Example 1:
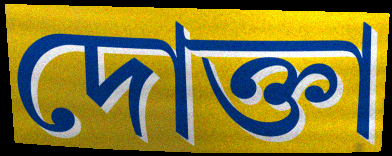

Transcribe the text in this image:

দোক্তা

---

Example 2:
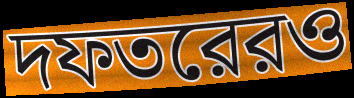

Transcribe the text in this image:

দফতরেরও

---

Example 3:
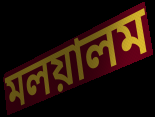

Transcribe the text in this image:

মলয়ালম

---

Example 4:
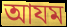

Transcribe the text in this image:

আযম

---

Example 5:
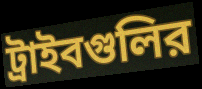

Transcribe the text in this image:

ট্রাইবগুলির